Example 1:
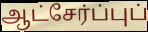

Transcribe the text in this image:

ஆட்சேர்ப்புப்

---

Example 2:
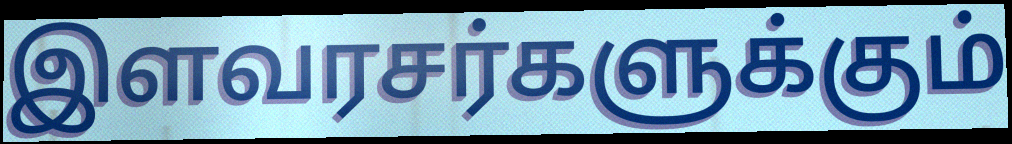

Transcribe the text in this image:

இளவரசர்களுக்கும்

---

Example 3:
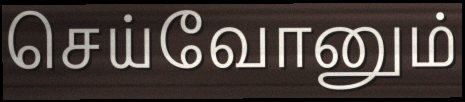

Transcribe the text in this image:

செய்வோனும்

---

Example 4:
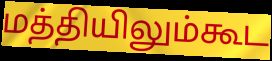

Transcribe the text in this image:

மத்தியிலும்கூட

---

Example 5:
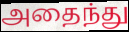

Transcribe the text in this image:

அதைந்து